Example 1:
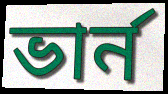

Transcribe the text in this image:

ভার্ন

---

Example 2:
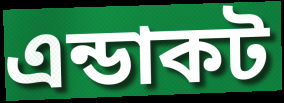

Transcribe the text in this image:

এন্ডাকট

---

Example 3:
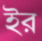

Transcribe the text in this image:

ইর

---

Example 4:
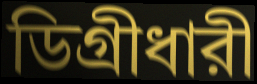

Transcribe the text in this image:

ডিগ্রীধারী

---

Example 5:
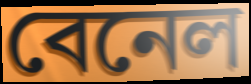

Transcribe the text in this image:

বেনেল